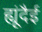
ह्यूंदैई